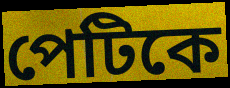
পেটিকে